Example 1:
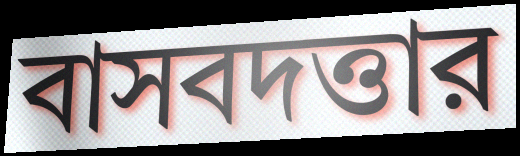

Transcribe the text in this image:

বাসবদত্তার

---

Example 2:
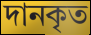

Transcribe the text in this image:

দানকৃত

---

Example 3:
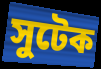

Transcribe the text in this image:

সুটেক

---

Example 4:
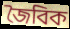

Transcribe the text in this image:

জৈবিক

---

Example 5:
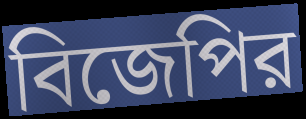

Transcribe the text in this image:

বিজেপির